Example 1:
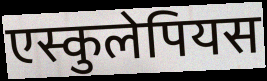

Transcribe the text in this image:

एस्कुलेपियस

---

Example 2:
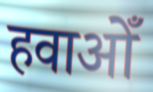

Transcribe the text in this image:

हवाओँ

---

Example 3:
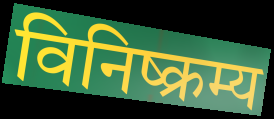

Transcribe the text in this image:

विनिष्क्रम्य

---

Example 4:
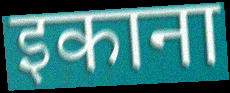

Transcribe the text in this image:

इकाना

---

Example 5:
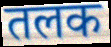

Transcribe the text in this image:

तलक